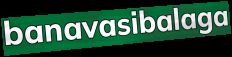
banavasibalaga